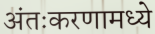
अंतःकरणामध्ये